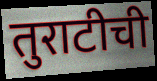
तुराटीची